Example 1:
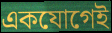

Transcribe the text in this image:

একযোগেই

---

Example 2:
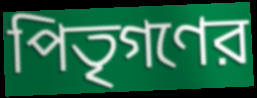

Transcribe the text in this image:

পিতৃগণের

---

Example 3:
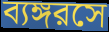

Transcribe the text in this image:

ব্যঙ্গরসে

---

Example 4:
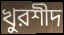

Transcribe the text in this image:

খুরশীদ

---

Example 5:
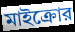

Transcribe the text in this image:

মাইক্রোর